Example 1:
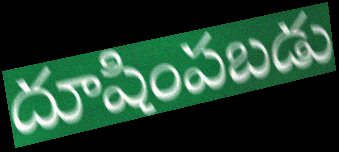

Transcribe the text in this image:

దూషింపబడు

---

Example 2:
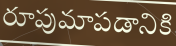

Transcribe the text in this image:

రూపుమాపడానికి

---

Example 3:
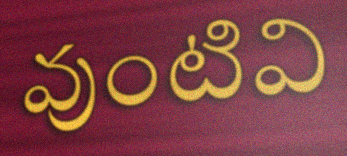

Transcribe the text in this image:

వుంటివి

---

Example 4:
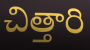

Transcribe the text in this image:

చిత్తారి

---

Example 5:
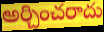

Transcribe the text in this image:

అర్చించరాదు